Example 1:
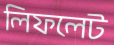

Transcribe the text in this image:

লিফলেট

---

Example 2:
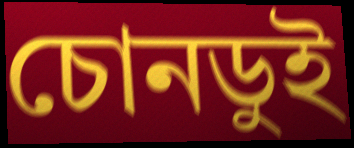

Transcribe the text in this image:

চোনডুই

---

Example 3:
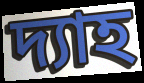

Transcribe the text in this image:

দ্যাহ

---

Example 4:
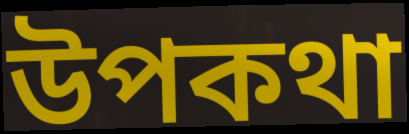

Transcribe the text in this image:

উপকথা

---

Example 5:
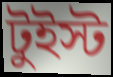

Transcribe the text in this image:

টুইস্ট